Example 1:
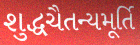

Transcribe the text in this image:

શુદ્ધચૈતન્યમૂર્તિ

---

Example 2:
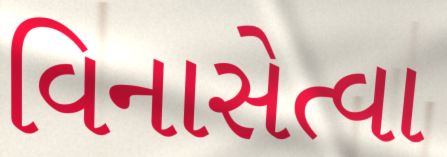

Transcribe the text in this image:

વિનાસેત્વા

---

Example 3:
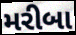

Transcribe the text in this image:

મરીબા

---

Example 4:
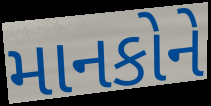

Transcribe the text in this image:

માનકોને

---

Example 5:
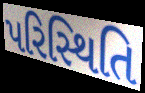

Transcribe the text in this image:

પરિસ્‍થિતિ